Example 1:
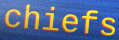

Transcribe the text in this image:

chiefs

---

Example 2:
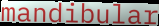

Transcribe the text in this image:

mandibular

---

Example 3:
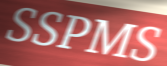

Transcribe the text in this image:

SSPMS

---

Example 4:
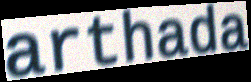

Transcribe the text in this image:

arthada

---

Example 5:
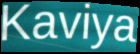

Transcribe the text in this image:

Kaviya